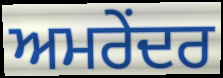
ਅਮਰੇਂਦਰ